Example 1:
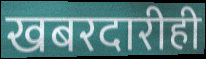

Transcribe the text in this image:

खबरदारीही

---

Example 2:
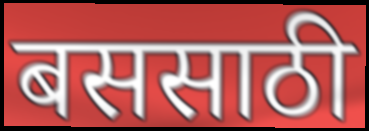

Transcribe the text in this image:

बससाठी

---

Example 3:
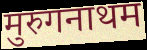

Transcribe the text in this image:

मुरुगनाथम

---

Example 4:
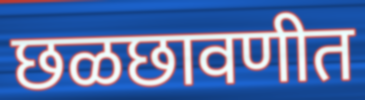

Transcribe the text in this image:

छळछावणीत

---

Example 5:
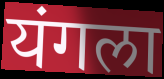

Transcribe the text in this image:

यंगला